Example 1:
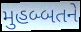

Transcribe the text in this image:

મુહબ્બતને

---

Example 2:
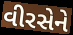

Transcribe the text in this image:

વીરસેને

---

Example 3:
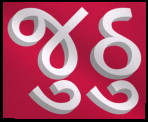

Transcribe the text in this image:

જુઠુ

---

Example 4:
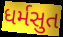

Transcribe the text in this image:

ધર્મસુત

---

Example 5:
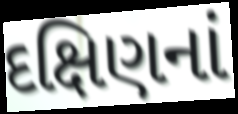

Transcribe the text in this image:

દક્ષિણનાં